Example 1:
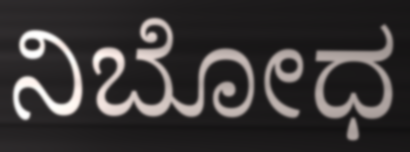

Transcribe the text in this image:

ನಿಬೋಧ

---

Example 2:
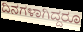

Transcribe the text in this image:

ದಿನಗಳಾಗಿದ್ದರೂ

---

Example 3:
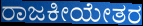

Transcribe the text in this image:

ರಾಜಕೀಯೇತರ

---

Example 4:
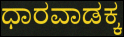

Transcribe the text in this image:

ಧಾರವಾಡಕ್ಕ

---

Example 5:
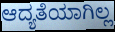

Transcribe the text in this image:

ಆದ್ಯತೆಯಾಗಿಲ್ಲ